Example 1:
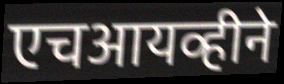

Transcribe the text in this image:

एचआयव्हीने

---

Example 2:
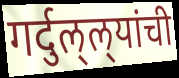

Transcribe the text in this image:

गर्दुल्ल्यांची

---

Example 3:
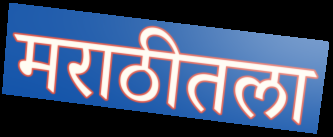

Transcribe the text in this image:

मराठीतला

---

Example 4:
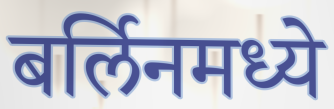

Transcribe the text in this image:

बर्लिनमध्ये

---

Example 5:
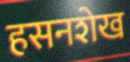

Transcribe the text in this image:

हसनशेख